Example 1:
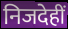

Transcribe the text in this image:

निजदेहीं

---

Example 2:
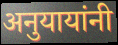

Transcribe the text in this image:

अनुयायांनी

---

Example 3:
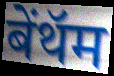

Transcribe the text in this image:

बेंथॅम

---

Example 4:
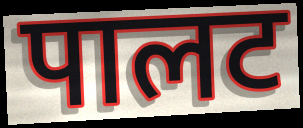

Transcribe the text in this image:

पालट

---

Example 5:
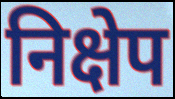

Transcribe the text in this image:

निक्षेप